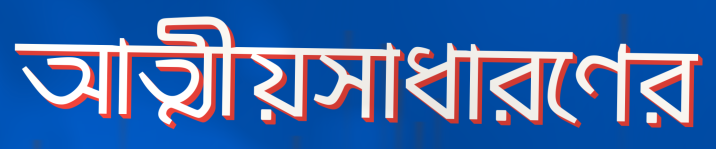
আত্মীয়সাধারণের